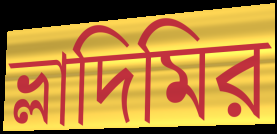
ভ্লাদিমির